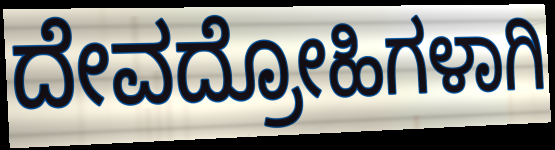
ದೇವದ್ರೋಹಿಗಳಾಗಿ